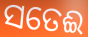
ସତେଈ